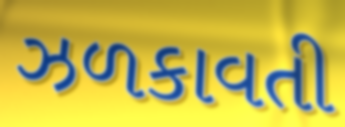
ઝળકાવતી